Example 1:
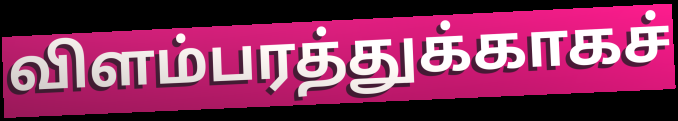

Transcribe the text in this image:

விளம்பரத்துக்காகச்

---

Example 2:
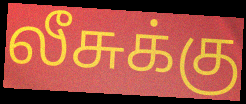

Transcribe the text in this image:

லீசுக்கு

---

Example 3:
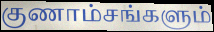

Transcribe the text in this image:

குணாம்சங்களும்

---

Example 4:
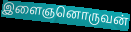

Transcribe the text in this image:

இளைஞனொருவன்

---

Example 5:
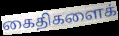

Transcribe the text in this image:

கைதிகளைக்